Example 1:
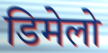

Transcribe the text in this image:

डिमेलो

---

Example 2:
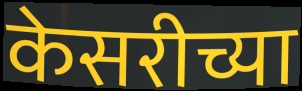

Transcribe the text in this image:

केसरीच्या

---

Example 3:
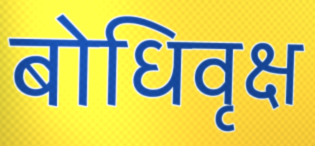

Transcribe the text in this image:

बोधिवृक्ष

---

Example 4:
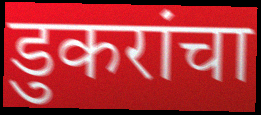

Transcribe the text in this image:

डुकरांचा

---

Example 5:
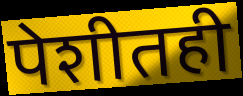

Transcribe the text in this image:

पेशीतही